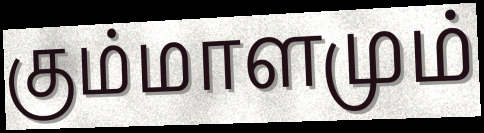
கும்மாளமும்